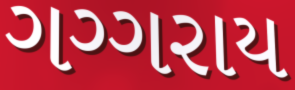
ગગ્ગરાય